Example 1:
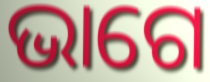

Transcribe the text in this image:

ଭାଗେ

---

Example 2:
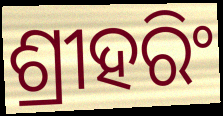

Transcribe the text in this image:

ଶ୍ରୀହରିଂ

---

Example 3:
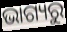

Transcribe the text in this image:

ଭାଗ୍ୟରୁ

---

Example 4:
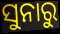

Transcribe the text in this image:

ସୁନାରୁ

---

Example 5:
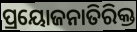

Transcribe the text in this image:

ପ୍ରୟୋଜନାତିରିକ୍ତ